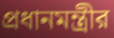
প্রধানমন্ত্রীর